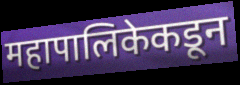
महापालिकेकडून